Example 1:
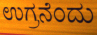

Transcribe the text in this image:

ಉಗ್ರನೆಂದು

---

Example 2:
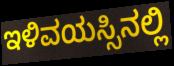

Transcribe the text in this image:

ಇಳಿವಯಸ್ಸಿನಲ್ಲಿ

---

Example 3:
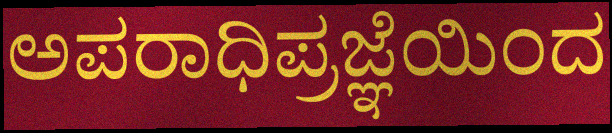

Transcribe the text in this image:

ಅಪರಾಧಿಪ್ರಜ್ಞೆಯಿಂದ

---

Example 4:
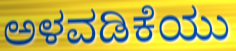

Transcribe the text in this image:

ಅಳವಡಿಕೆಯು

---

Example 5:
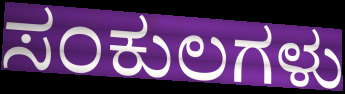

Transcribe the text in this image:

ಸಂಕುಲಗಳು